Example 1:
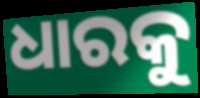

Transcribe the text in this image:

ଧାରକୁ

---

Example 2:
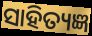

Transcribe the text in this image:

ସାହିତ୍ୟଜ୍ଞ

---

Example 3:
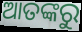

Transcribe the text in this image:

ଆତଙ୍କରୁ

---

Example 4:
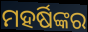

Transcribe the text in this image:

ମହର୍ଷିଙ୍କର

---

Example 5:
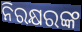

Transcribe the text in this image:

ନିରକ୍ଷରଙ୍କ